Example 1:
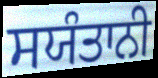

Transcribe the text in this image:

ਸਯੰਤਾਨੀ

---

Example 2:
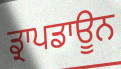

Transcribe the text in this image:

ਡ੍ਰਾਪਡਾਊਨ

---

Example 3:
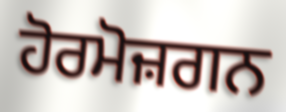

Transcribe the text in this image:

ਹੋਰਮੋਜ਼ਗਨ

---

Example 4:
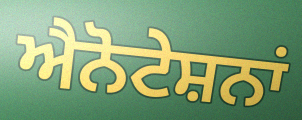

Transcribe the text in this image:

ਐਨੋਟੇਸ਼ਨਾਂ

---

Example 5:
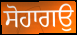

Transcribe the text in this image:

ਸੋਹਾਗਉ